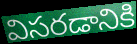
విసరడానికి